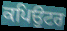
ਕਪਿਉਟਰ